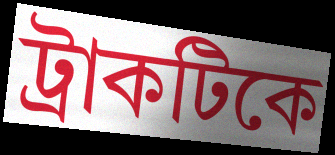
ট্রাকটিকে